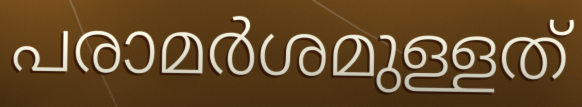
പരാമർശമുള്ളത്